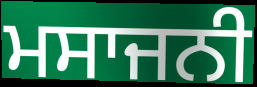
ਮਸਾਜਨੀ